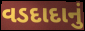
વડદાદાનું